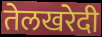
तेलखरेदी